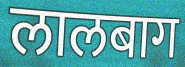
लालबाग